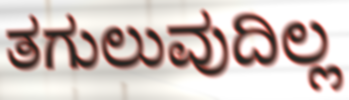
ತಗುಲುವುದಿಲ್ಲ